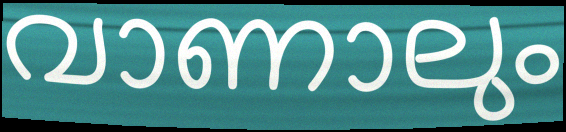
വാണാലും